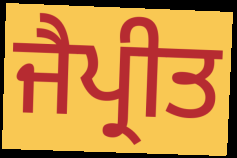
ਜੈਪ੍ਰੀਤ